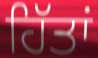
ਹਿੱਤਾਂ